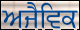
ਅਜੈਵਿਕ